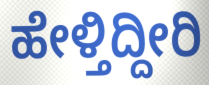
ಹೇಳ್ತಿದ್ದೀರಿ